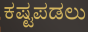
ಕಷ್ಟಪಡಲು